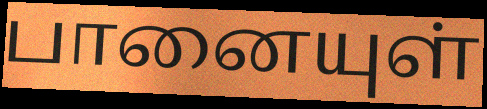
பானையுள்